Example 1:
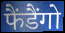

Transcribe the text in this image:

फैंडैंगो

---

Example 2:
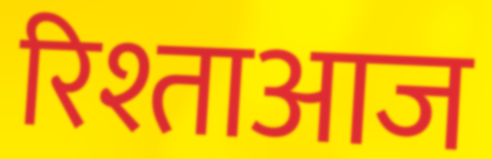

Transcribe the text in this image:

रिश्ताआज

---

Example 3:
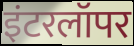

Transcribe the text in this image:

इंटरलॉपर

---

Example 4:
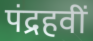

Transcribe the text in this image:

पंद्रहवीं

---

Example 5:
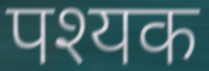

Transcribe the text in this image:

पश्यक